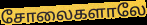
சோலைகளாலே